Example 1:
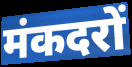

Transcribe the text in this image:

मंकदरों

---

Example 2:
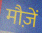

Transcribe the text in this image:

मौज़ें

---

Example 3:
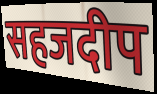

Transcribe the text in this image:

सहजदीप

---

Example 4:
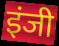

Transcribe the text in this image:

इंजी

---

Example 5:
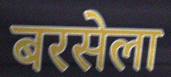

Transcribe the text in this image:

बरसेला